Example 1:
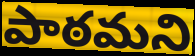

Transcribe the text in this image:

పాఠమని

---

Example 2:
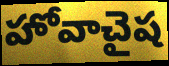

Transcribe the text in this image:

హోవాచైష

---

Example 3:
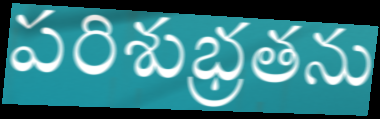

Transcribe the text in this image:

పరిశుభ్రతను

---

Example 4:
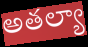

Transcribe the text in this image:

అతల్యా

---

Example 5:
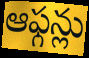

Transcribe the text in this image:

ఆఫ్గన్లు